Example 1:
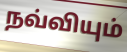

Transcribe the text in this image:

நவ்வியும்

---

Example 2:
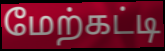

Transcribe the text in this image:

மேற்கட்டி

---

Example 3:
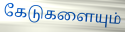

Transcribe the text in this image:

கேடுகளையும்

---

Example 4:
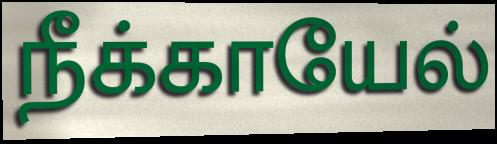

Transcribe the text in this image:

நீக்காயேல்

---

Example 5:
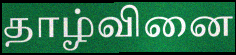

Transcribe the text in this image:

தாழ்வினை